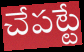
చేపట్టే